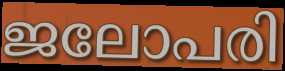
ജലോപരി